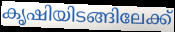
കൃഷിയിടങ്ങിലേക്ക്